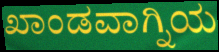
ಖಾಂಡವಾಗ್ನಿಯ